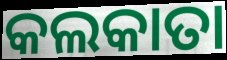
କଲକାତା